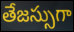
తేజస్సుగా